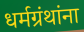
धर्मग्रंथांना